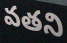
వతని